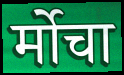
र्मोचा